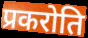
प्रकरोति